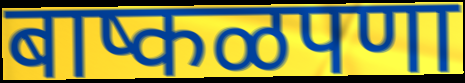
बाष्कळपणा